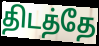
திடத்தே